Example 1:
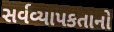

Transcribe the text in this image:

સર્વવ્યાપકતાનો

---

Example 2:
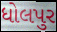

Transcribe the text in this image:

ધોલપુર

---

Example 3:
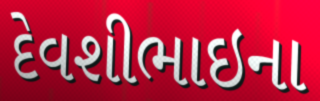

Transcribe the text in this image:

દેવશીભાઇના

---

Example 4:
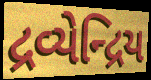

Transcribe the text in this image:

દ્રવ્યેન્દ્રિય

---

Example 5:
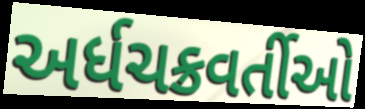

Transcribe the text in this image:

અર્ધચક્રવર્તીઓ